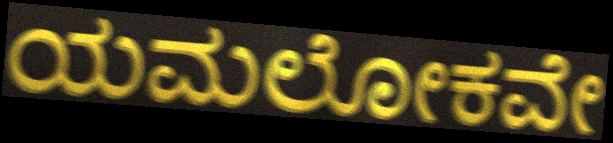
ಯಮಲೋಕವೇ